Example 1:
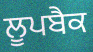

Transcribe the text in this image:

ਲੂਪਬੈਕ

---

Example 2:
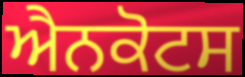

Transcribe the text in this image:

ਐਨਕੋਟਸ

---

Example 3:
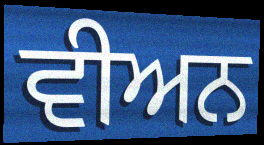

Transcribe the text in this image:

ਵੀਅਨ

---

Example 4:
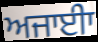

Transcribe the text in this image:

ਅਜਾਈਾ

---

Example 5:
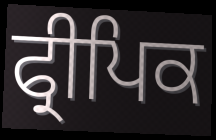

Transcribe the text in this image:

ਫ੍ਰੀਪਿਕ